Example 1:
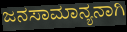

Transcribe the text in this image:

ಜನಸಾಮಾನ್ಯನಾಗಿ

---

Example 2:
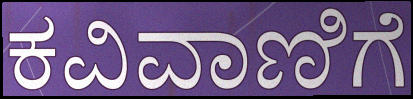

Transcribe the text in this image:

ಕವಿವಾಣಿಗೆ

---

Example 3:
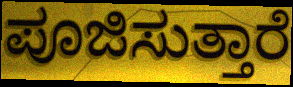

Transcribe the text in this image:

ಪೂಜಿಸುತ್ತಾರೆ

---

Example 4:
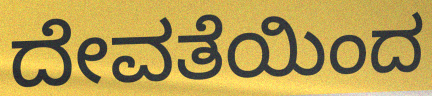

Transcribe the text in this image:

ದೇವತೆಯಿಂದ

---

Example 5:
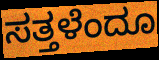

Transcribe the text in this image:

ಸತ್ತಳೆಂದೂ